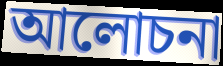
আলোচনা